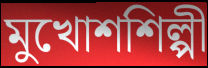
মুখোশশিল্পী